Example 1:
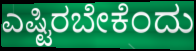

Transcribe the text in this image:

ಎಷ್ಟಿರಬೇಕೆಂದು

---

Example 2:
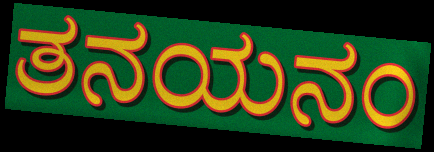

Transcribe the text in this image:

ತನಯನಂ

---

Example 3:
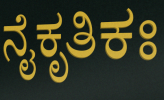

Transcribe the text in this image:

ನೈಕೃತಿಕಃ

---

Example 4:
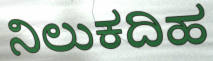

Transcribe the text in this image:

ನಿಲುಕದಿಹ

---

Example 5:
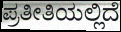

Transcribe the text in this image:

ಪ್ರತೀತಿಯಲ್ಲಿದೆ